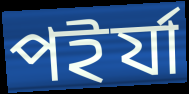
পইর্যা